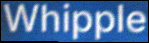
Whipple